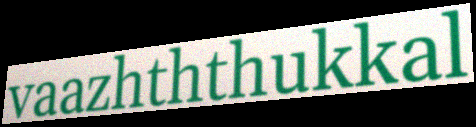
vaazhththukkal